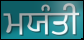
ਮਯੰਤੀ